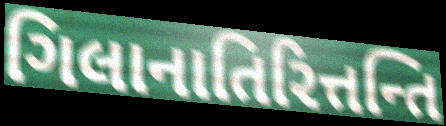
ગિલાનાતિરિત્તન્તિ